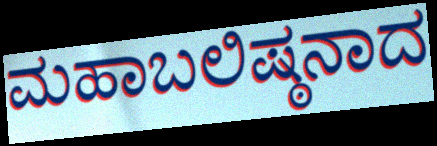
ಮಹಾಬಲಿಷ್ಠನಾದ